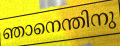
ഞാനെന്തിനു